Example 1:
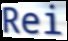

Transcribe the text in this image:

Rei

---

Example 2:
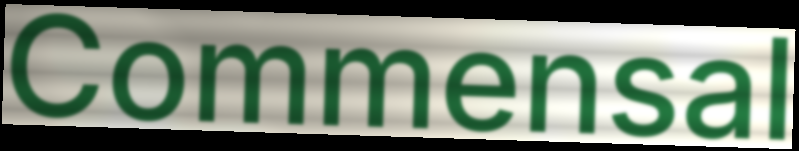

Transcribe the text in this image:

Commensal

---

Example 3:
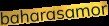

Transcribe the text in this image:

baharasamor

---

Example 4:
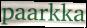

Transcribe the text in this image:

paarkka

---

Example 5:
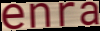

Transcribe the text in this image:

enra